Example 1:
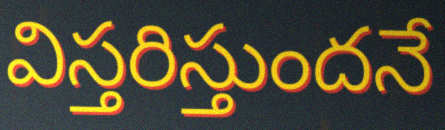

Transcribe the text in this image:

విస్తరిస్తుందనే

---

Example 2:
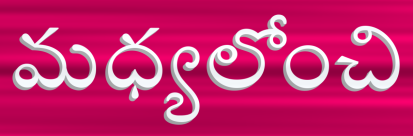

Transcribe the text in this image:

మధ్యలోంచి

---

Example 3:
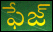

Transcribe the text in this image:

ఫేజ్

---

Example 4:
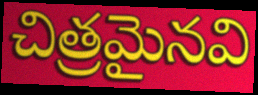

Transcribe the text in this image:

చిత్రమైనవి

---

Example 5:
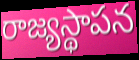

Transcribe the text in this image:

రాజ్యస్థాపన